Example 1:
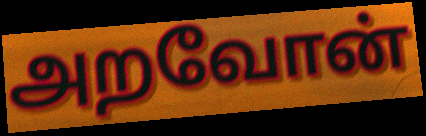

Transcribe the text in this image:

அறவோன்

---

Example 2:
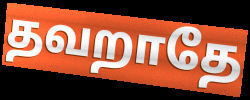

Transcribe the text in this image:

தவறாதே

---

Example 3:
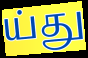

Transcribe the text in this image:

ய்து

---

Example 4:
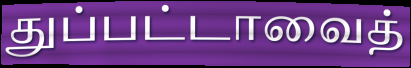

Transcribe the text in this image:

துப்பட்டாவைத்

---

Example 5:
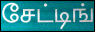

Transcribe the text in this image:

சேட்டிங்